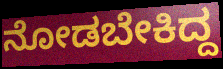
ನೋಡಬೇಕಿದ್ದ